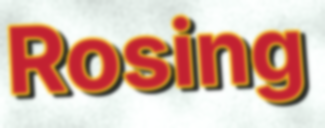
Rosing